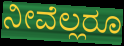
ನೀವೆಲ್ಲರೂ